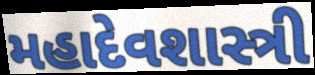
મહાદેવશાસ્ત્રી